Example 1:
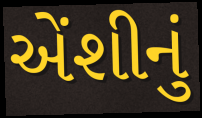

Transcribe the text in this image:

એંશીનું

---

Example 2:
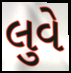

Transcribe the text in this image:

લુવે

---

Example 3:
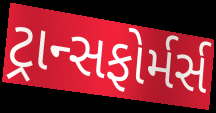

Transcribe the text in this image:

ટ્રાન્સફોર્મર્સ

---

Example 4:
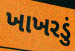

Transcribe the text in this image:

ખાખરડું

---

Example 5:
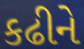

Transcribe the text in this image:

કઢીને